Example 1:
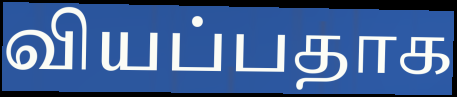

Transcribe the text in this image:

வியப்பதாக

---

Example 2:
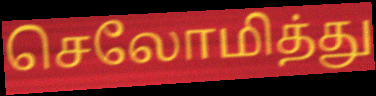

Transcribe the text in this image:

செலோமித்து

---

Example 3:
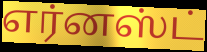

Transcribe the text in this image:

எர்னஸ்ட்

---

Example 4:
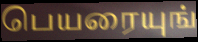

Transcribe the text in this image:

பெயரையுங்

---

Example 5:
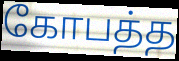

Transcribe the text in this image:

கோபத்த